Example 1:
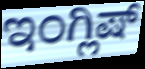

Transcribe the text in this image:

ಇಂಗ್ಲಿಷ್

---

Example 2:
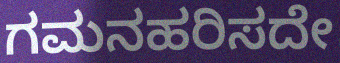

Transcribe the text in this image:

ಗಮನಹರಿಸದೇ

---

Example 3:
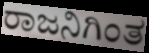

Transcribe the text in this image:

ರಾಜನಿಗಿಂತ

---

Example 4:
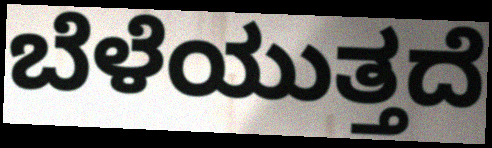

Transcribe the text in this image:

ಬೆಳೆಯುತ್ತದೆ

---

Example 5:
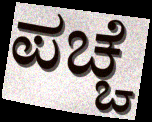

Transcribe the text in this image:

ಪಚ್ಚೆ